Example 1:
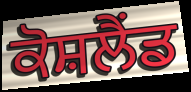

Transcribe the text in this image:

ਕੋਸ਼ਲੈਂਡ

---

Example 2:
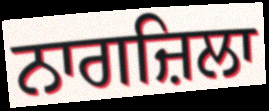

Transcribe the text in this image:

ਨਾਗਜ਼ਿਲਾ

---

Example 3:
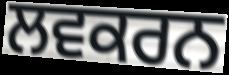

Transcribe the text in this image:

ਲਵਕਰਨ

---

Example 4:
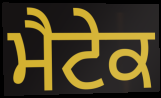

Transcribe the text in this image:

ਮੈਟੇਕ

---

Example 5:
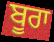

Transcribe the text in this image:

ਬੂਰਾ